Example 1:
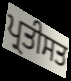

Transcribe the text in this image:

ਪ੍ਰਤੀਸਤ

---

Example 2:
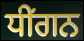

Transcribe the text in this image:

ਧੀਂਗਨ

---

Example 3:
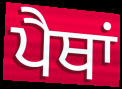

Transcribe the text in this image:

ਪੈਥਾਂ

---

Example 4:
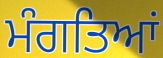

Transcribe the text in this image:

ਮੰਗਤਿਆਂ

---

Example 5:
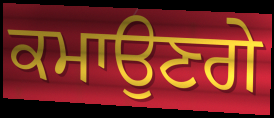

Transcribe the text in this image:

ਕਮਾਉਣਗੇ